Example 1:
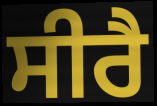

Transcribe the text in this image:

ਸੀਰੈ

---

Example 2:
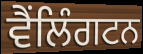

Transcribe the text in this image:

ਵੈਂਲਿੰਗਟਨ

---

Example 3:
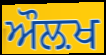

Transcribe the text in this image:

ਔਲ਼ਖ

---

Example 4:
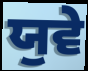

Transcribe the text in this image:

ਯੁਵੇ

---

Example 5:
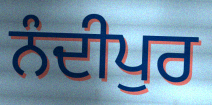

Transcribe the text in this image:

ਨੰਦੀਪੁਰ